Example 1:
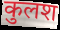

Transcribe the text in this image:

कुलश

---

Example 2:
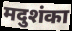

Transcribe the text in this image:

मदुशंका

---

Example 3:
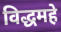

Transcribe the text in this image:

विद्धमहे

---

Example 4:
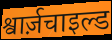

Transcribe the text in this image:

श्वार्ज़चाइल्ड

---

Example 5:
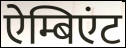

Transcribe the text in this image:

ऐम्बिएंट